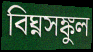
বিঘ্নসঙ্কুল